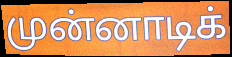
முன்னாடிக்